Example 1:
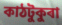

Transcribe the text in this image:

কাঠটুকুৰা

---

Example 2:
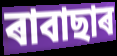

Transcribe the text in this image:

ৰাবাছাৰ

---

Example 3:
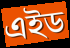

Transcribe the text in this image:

এইড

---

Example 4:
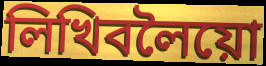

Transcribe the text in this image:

লিখিবলৈয়ো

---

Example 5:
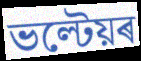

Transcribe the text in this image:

ভল্টেয়ৰ